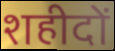
शहीदों